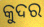
କୁଦର